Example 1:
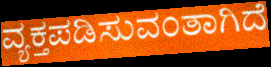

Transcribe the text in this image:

ವ್ಯಕ್ತಪಡಿಸುವಂತಾಗಿದೆ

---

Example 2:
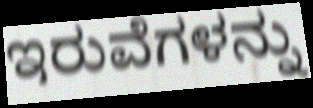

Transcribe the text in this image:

ಇರುವೆಗಳನ್ನು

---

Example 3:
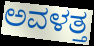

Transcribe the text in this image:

ಅವಳತ್ತ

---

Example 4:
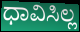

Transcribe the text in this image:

ಧಾವಿಸಿಲ್ಲ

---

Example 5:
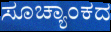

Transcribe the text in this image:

ಸೂಚ್ಯಾಂಕದ